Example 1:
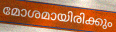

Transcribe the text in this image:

മോശമായിരിക്കും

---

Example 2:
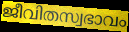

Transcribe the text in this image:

ജീവിതസ്വഭാവം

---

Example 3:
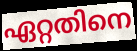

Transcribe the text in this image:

ഏറ്റതിനെ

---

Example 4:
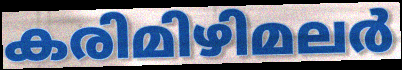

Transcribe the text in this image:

കരിമിഴിമലർ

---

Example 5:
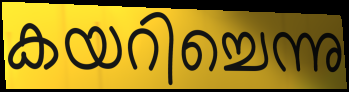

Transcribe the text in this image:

കയറിച്ചെന്നു